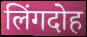
लिंगदोह